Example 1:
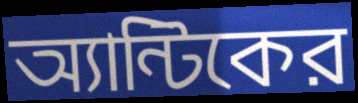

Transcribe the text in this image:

অ্যান্টিকের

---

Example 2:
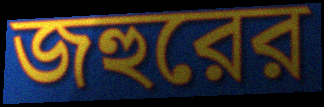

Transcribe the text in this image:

জহুরের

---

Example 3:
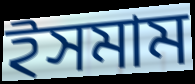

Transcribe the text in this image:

ইসমাম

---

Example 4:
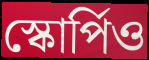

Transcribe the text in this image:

স্কোর্পিও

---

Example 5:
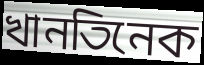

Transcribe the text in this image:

খানতিনেক